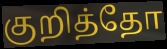
குறித்தோ